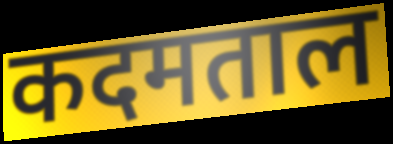
कदमताल